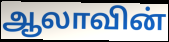
ஆலாவின்